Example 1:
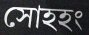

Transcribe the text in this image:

সোহহং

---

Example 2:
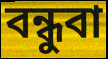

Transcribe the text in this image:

বন্ধুবা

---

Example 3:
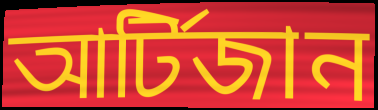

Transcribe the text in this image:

আর্টিজান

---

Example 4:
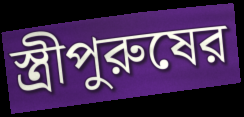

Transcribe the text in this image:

স্ত্রীপুরুষের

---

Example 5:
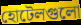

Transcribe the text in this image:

হোটেলগুলো